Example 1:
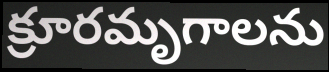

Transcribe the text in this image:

క్రూరమృగాలను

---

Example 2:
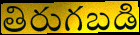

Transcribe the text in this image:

తిరుగబడి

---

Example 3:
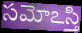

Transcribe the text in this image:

సమోఽస్తి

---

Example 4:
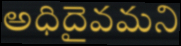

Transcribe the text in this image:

అధిదైవమని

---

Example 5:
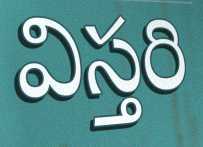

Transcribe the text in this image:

విస్తరి